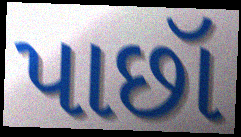
પાછૉ